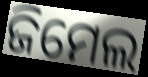
ଜିମେଲ